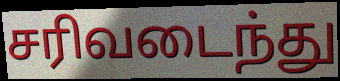
சரிவடைந்து